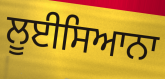
ਲੂਈਸਿਆਨਾ